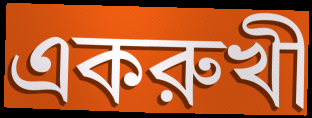
একরুখী